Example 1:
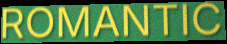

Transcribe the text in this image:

ROMANTIC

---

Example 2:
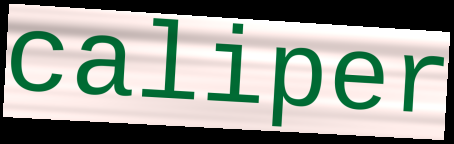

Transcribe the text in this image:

caliper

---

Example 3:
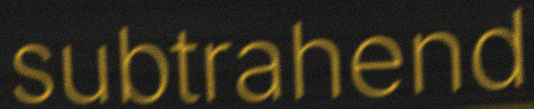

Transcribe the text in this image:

subtrahend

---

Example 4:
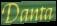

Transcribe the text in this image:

Danta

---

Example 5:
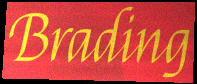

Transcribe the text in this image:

Brading